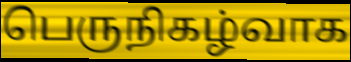
பெருநிகழ்வாக